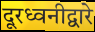
दूरध्वनीद्वारे